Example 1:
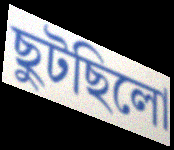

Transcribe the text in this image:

ছুটছিলো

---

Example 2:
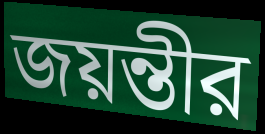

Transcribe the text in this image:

জয়ন্তীর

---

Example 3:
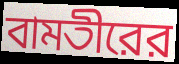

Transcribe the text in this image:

বামতীরের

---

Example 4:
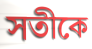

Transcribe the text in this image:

সতীকে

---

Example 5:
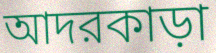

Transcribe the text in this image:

আদরকাড়া